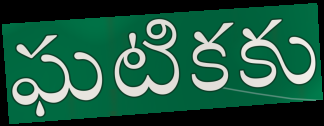
ఘటికకు